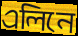
এলিনে